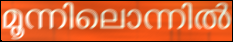
മൂന്നിലൊന്നിൽ